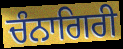
ਚੰਨਾਗਿਰੀ